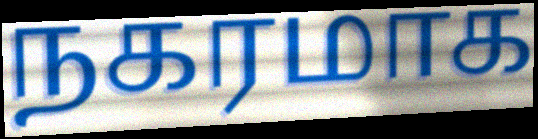
நகரமாக